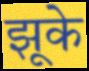
झूके